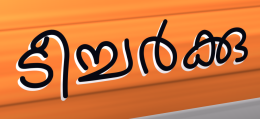
ടീച്ചർക്കു